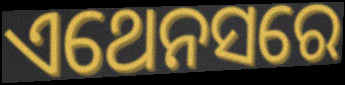
ଏଥେନସରେ